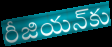
రీజియన్‌కు